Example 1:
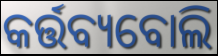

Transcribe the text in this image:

କର୍ତ୍ତବ୍ୟବୋଲି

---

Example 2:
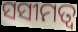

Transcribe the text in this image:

ସସୀମତ୍ୱ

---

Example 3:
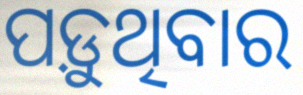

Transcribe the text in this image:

ପଡ଼ୁଥିବାର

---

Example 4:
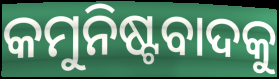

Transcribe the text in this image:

କମୁନିଷ୍ଟବାଦକୁ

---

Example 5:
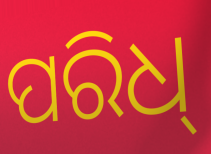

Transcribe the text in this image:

ପରିଧ୍